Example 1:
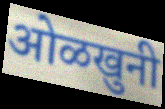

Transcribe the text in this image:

ओळखुनी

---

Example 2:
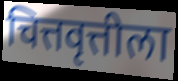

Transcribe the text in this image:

चित्तवृत्तीला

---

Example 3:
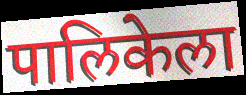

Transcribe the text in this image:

पालिकेला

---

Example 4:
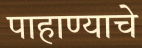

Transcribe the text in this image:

पाहाण्याचे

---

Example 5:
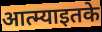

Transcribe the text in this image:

आत्म्याइतके